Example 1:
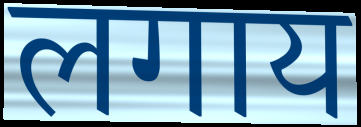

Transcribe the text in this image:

लगाय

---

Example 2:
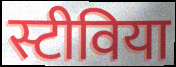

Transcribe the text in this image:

स्टीविया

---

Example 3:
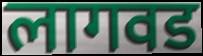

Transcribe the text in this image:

लागवड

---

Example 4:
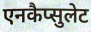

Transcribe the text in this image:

एनकैप्सुलेट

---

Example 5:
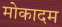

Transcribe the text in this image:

मोकादम